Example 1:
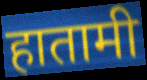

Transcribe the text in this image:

हातामी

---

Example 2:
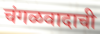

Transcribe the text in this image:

चंगळवादाची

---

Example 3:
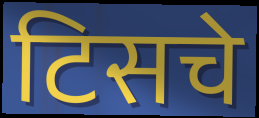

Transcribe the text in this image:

टिसचे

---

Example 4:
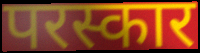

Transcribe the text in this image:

परस्कार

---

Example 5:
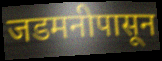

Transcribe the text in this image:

जडमनीपासून